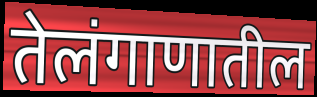
तेलंगाणातील